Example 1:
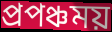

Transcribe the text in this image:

প্রপঞ্চময়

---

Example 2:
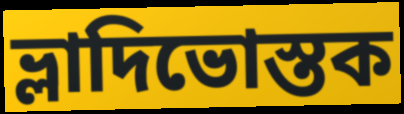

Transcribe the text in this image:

ভ্লাদিভোস্তক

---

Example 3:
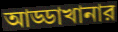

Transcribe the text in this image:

আড্ডাখানার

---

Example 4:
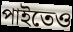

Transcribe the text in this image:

পাইতেও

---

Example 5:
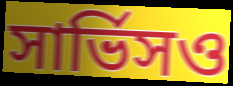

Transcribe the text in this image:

সার্ভিসও